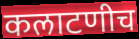
कलाटणीच